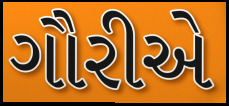
ગૌરીએ